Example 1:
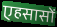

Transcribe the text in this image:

एहसासों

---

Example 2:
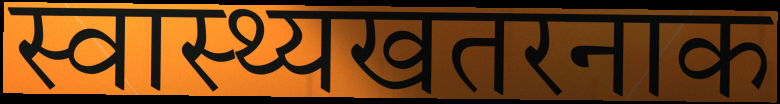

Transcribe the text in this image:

स्वास्थ्यखतरनाक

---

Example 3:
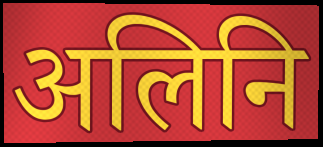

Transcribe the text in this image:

अलिनि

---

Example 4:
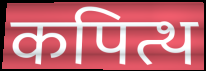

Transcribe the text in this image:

कपित्थ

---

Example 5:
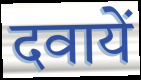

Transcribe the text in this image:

दवायें